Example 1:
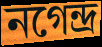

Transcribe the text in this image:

নগেন্দ্র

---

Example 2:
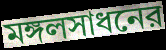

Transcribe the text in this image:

মঙ্গলসাধনের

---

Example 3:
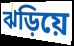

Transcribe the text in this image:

ঝড়িয়ে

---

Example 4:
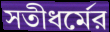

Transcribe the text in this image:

সতীধর্মের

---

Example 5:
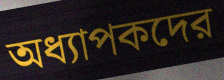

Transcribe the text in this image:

অধ্যাপকদের